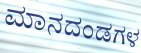
ಮಾನದಂಡಗಳ